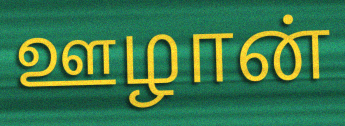
ஊழான்